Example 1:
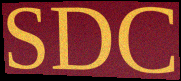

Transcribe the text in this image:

SDC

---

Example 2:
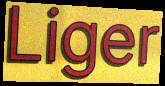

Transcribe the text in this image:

Liger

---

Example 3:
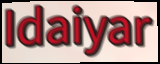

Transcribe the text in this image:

Idaiyar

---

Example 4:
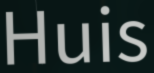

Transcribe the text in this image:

Huis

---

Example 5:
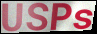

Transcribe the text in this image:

USPs